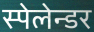
स्पेलेन्डर